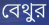
বেথুর